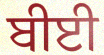
ਬੀਈ